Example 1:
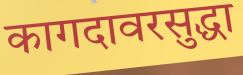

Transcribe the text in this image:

कागदावरसुद्धा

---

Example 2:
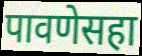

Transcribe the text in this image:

पावणेसहा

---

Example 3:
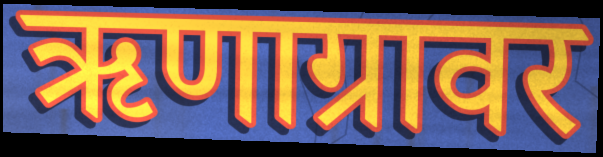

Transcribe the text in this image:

ऋणाग्रावर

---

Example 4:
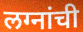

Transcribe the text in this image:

लग्नांची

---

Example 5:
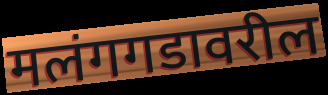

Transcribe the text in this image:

मलंगगडावरील